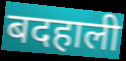
बदहाली